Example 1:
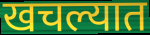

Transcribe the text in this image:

खचल्यात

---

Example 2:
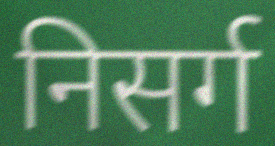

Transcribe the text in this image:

निसर्ग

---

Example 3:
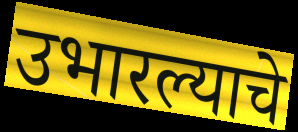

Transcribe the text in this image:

उभारल्याचे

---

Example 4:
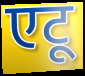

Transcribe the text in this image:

एटू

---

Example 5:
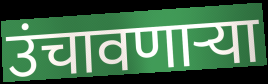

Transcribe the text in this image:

उंचावणाऱ्या